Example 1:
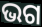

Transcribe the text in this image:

ଭଗ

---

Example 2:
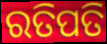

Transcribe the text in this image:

ରତିପତି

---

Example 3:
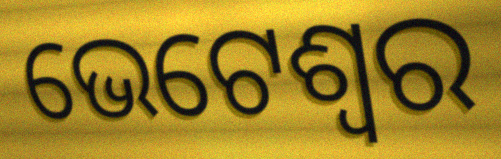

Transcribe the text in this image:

ଭେଟେଶ୍ୱର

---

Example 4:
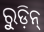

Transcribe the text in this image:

ରୁଡ଼ିନ୍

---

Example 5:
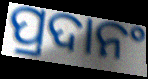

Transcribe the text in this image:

ପ୍ରଦାନଂ